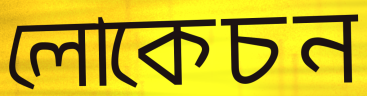
লোকেচন